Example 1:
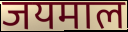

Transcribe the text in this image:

जयमाल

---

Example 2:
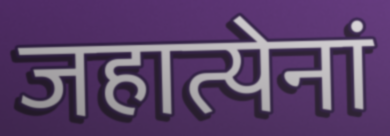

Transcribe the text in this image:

जहात्येनां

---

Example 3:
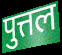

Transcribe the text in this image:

पुत्तल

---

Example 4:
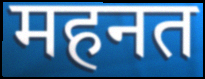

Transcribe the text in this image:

महनत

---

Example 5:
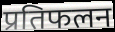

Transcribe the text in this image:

प्रतिफलन